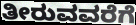
ತೀರುವವರೆಗೆ